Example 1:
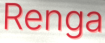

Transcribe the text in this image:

Renga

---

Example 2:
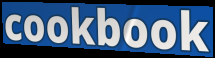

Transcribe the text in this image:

cookbook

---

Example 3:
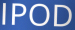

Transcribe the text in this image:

IPOD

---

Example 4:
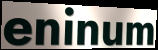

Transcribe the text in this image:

eninum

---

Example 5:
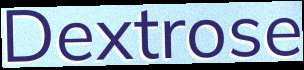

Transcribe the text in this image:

Dextrose